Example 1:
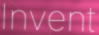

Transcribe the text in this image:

Invent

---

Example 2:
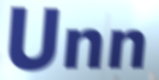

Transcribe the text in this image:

Unn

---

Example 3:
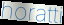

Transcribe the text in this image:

horatti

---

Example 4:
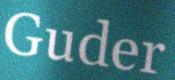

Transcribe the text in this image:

Guder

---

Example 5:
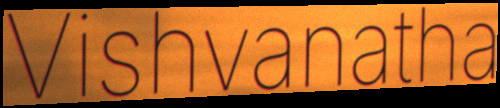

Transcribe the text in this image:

Vishvanatha